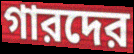
গারদের